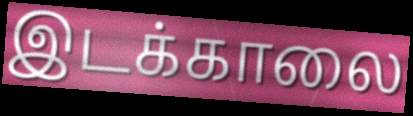
இடக்காலை